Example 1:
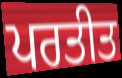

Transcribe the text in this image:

ਪਰਤੀਤ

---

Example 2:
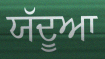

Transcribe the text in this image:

ਯੱਦੂਆ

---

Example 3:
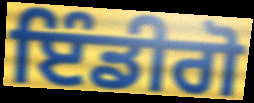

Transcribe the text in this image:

ਇੰਡੀਗੋ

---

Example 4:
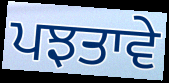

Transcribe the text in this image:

ਪਝਤਾਵੇ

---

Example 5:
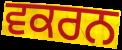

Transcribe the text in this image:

ਵਕਰਨ